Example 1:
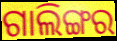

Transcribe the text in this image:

ଗାଲିଙ୍ଗର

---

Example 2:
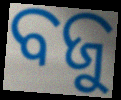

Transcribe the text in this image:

ବଜୁ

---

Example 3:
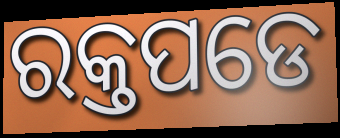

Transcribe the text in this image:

ରକ୍ତପଡେ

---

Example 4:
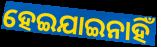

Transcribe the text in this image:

ହେଇଯାଇନାହିଁ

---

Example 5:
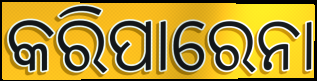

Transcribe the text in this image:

କରିପାରେନା